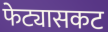
फेट्यासकट